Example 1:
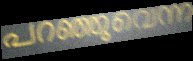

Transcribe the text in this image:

പറഞ്ഞുവെന്ന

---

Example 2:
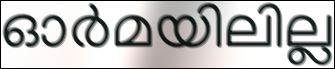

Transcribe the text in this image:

ഓർമയിലില്ല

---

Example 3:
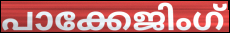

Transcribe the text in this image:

പാക്കേജിംഗ്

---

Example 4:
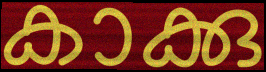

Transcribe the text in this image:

കാക്കു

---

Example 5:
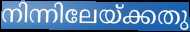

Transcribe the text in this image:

നിന്നിലേയ്ക്കതു